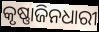
କୃଷ୍ଣାଜିନଧାରୀ